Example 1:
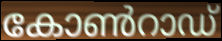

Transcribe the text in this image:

കോൺറാഡ്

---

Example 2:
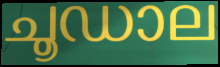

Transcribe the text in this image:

ചൂഡാല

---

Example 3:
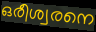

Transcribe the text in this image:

ഒരീശ്വരനെ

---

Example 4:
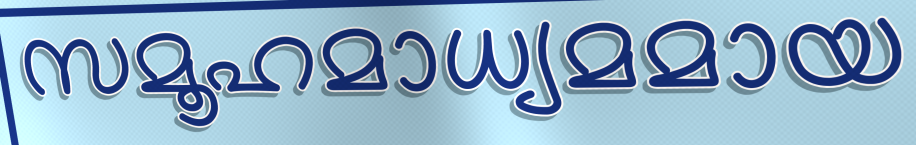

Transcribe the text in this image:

സമൂഹമാധ്യമമായ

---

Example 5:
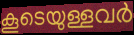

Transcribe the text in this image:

കൂടെയുള്ളവർ